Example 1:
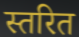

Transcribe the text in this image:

स्तरित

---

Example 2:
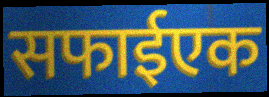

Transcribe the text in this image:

सफाईएक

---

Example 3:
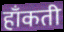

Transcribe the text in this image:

हाँकती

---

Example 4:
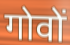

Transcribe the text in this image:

गोवों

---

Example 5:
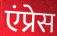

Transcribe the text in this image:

एंप्रेस